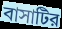
বাসাটির